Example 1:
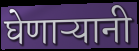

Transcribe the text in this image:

घेणाऱ्यानी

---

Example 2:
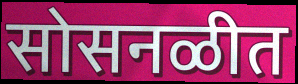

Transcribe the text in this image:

सोसनळीत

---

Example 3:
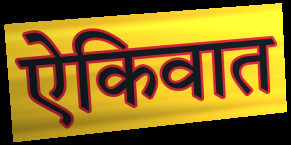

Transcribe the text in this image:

ऐकिवात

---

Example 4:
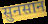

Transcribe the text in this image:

सुनसान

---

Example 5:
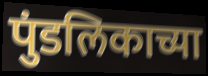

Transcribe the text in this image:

पुंडलिकाच्या